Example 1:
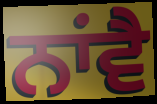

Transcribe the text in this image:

ਨਾਂਵੈ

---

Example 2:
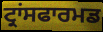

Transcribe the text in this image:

ਟ੍ਰਾਂਸਫਾਰਮਡ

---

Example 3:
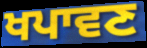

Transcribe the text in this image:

ਖਪਾਵਣ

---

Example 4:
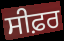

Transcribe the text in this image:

ਸੀਫ਼ਰ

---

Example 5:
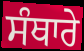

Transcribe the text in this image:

ਸੰਥਾਰੇ